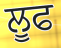
ਲੂਫ